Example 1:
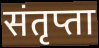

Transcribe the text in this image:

संतृप्ता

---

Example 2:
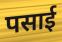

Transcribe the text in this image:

पसाई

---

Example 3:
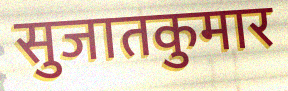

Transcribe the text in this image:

सुजातकुमार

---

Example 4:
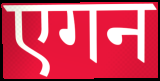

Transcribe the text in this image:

एगन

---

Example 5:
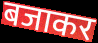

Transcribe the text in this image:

बजाकर